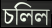
চলিল